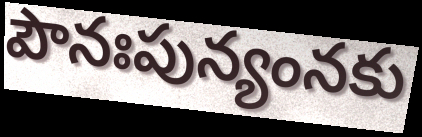
పౌనఃపున్యంనకు